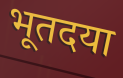
भूतदया